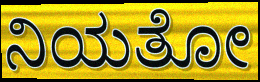
ನಿಯತೋ